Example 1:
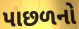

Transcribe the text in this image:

પાછળનો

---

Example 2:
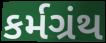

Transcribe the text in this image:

કર્મગ્રંથ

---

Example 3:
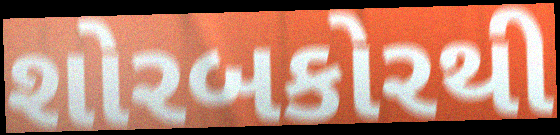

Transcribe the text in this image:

શોરબકોરથી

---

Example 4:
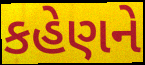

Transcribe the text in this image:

કહેણને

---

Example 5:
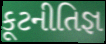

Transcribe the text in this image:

કૂટનીતિજ્ઞ